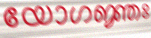
യോഗജ്ഞഃ